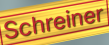
Schreiner